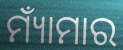
ମ୍ୟାଁମାର